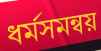
ধর্মসমন্বয়